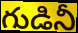
గుడినీ